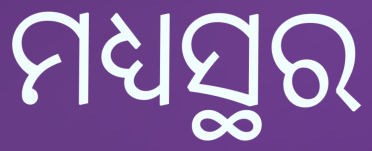
ମଧ୍ୟସ୍ଥର